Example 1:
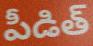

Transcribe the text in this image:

పీడిత్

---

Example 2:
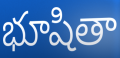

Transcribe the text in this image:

భూషితా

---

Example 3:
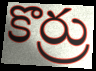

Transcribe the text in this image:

కొర్రు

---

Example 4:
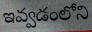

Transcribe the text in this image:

ఇవ్వడంలోని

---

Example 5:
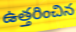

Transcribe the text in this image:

ఉత్తరించిన